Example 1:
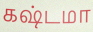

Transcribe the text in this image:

கஷ்டமா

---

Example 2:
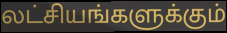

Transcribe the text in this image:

லட்சியங்களுக்கும்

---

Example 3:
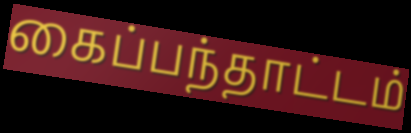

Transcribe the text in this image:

கைப்பந்தாட்டம்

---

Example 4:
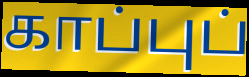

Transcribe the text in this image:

காப்புப்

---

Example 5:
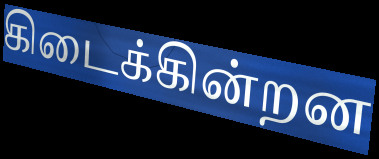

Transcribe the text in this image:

கிடைக்கின்றன